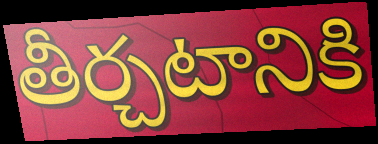
తీర్చటానికి